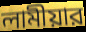
লামীয়ার